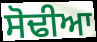
ਸੋਢੀਆ